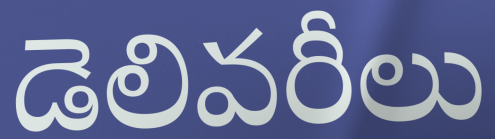
డెలివరీలు